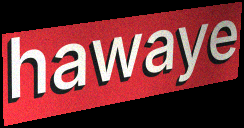
hawaye